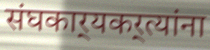
संघकार्यकर्त्यांना